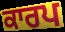
ਕਾਰਪ